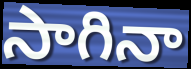
సాగినా